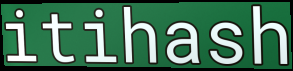
itihash